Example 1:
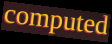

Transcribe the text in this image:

computed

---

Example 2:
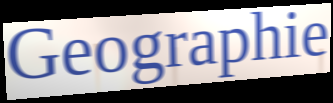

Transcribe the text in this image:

Geographie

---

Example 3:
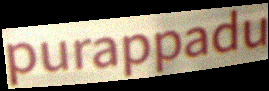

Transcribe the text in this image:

purappadu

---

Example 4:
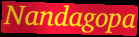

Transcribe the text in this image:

Nandagopa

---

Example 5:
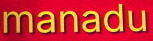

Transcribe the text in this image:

manadu